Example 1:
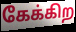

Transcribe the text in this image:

கேக்கிற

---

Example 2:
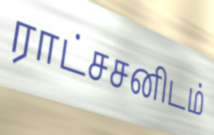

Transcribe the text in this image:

ராட்சசனிடம்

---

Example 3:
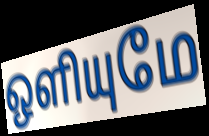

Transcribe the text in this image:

ஒளியுமே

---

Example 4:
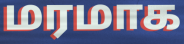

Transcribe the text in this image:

மரமாக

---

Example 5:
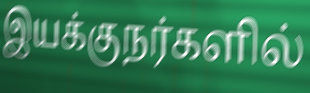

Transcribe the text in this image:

இயக்குநர்களில்